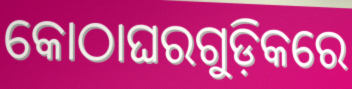
କୋଠାଘରଗୁଡ଼ିକରେ